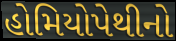
હોમિયોપેથીનો